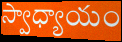
స్వాధ్యాయం